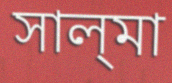
সাল্‌মা